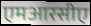
एमआरसीए